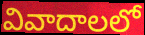
వివాదాలలో